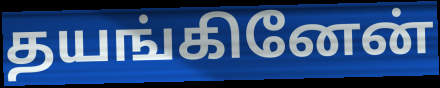
தயங்கினேன்